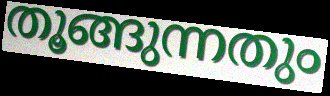
തൂങ്ങുന്നതും